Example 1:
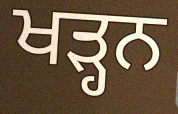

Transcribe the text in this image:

ਖੜ੍ਹਨ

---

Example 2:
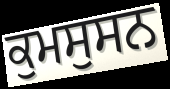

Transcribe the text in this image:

ਕੁਮਸੁਸਨ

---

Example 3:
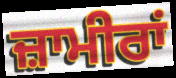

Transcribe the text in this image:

ਜ਼ਾਮੀਰਾਂ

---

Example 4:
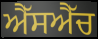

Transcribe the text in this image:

ਐੱਸਐੱਚ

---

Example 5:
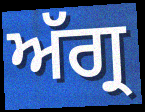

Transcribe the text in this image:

ਅੱਗ੍ਰ